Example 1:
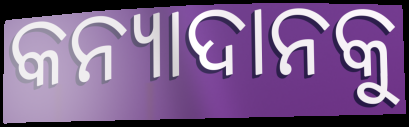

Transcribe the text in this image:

କନ୍ୟାଦାନକୁ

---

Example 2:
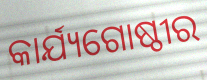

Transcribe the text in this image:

କାର୍ଯ୍ୟଗୋଷ୍ଠୀର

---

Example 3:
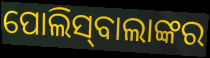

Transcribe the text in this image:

ପୋଲିସ୍‌ବାଲାଙ୍କର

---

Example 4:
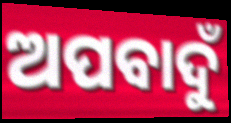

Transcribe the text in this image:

ଅପବାଦୁଁ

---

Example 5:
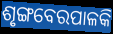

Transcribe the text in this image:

ଶୃଙ୍ଗବେରପାଳକି